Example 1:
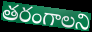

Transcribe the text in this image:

తరంగాలని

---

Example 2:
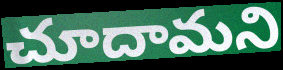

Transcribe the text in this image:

చూదామని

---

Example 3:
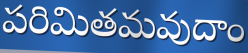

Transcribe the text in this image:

పరిమితమవుదాం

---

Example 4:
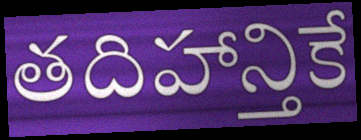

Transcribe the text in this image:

తదిహాన్తికే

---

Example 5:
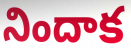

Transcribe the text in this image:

నిందాక